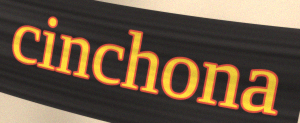
cinchona